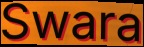
Swara